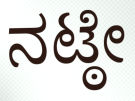
ನಟ್ಠೇ